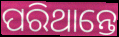
ପରିଥାନ୍ତେ